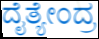
ದೈತ್ಯೇಂದ್ರ